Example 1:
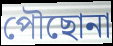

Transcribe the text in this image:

পৌছোনা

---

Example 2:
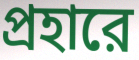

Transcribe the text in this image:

প্রহারে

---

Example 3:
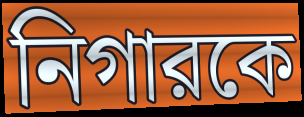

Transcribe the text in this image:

নিগারকে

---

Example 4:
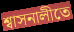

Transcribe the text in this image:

শ্বাসনালীতে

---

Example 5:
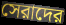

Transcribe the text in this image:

সেরাদের